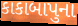
કાકાબાપુના